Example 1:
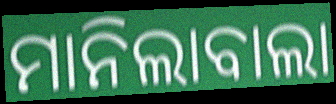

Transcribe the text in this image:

ମାନିଲାବାଲା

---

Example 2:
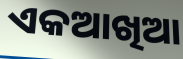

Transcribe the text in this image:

ଏକଆଖିଆ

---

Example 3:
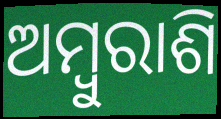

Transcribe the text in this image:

ଅମ୍ୱୁରାଶି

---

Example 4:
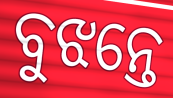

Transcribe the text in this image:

ବୁଝନ୍ତେ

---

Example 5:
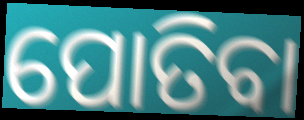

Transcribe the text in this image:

ପୋତିବା